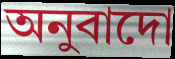
অনুবাদো